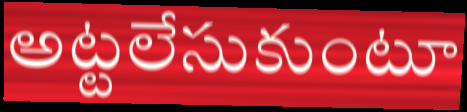
అట్టలేసుకుంటూ